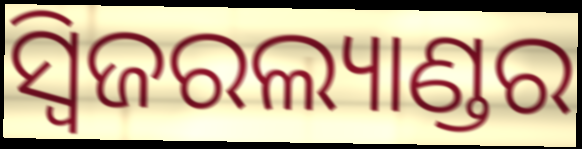
ସ୍ୱିଜରଲ୍ୟାଣ୍ଡର